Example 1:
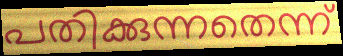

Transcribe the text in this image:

പതിക്കുന്നതെന്ന്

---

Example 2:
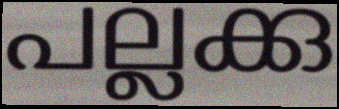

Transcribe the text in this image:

പല്ലക്കു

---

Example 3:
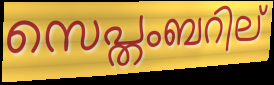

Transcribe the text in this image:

സെപ്തംബറില്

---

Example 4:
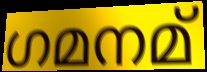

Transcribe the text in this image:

ഗമനമ്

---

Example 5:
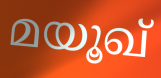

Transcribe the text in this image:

മയൂഖ്